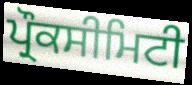
ਪ੍ਰੌਕਸੀਮਿਟੀ